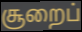
சூறைப்